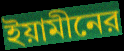
ইয়ামীনের